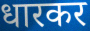
धारकर